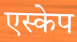
एस्केप